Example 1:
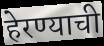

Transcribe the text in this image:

हेरण्याची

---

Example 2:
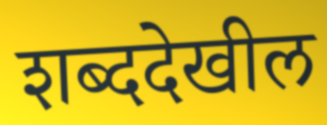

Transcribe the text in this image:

शब्ददेखील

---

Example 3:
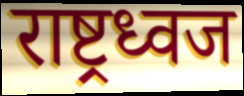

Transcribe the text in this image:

राष्ट्रध्वज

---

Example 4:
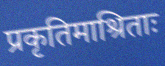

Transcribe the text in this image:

प्रकृतिमाश्रिताः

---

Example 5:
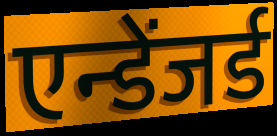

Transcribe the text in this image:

एन्डेंजर्ड